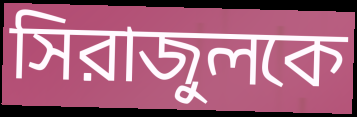
সিরাজুলকে